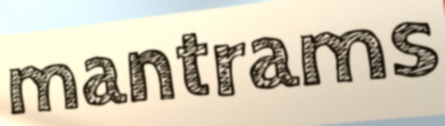
mantrams